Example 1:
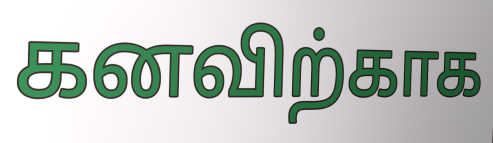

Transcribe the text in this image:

கனவிற்காக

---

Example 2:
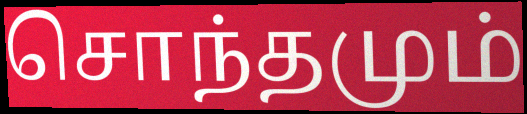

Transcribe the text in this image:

சொந்தமும்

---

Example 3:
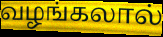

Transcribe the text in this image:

வழங்கலால்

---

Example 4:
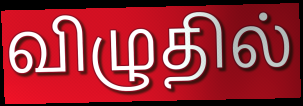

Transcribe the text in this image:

விழுதில்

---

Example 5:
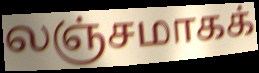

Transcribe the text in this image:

லஞ்சமாகக்